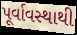
પૂર્વાવસ્થાથી